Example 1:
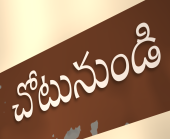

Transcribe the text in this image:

చోటునుండి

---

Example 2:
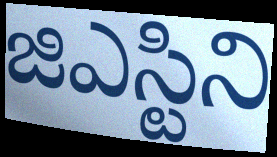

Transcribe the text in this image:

జిఎస్టిని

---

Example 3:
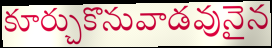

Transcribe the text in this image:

కూర్చుకొనువాడవునైన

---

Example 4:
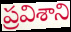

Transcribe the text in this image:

ప్రవిశాని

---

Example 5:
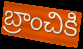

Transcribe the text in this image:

బ్రాంచికి